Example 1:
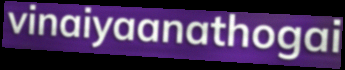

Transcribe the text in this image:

vinaiyaanathogai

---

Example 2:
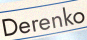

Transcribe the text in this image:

Derenko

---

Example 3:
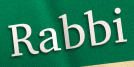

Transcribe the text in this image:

Rabbi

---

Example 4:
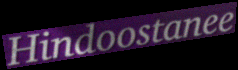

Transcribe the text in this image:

Hindoostanee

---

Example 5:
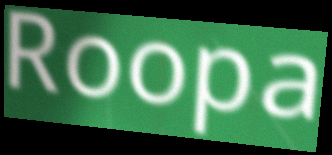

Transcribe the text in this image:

Roopa